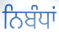
ਨਿਬੰਧਾਂ